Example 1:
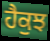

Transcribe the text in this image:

ਹੈਕੁਝ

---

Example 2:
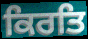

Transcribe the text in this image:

ਕਿਰਤਿ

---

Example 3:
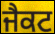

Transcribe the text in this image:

ਜੈਕਟ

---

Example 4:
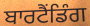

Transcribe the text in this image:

ਬਾਰਟੈਂਡਿੰਗ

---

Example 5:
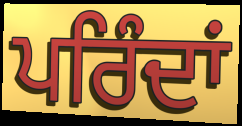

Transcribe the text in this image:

ਪਰਿੰਦਾਂ